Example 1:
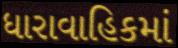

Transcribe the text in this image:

ધારાવાહિકમાં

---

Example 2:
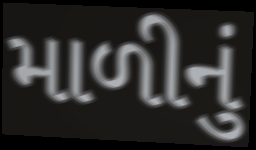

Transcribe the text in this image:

માળીનું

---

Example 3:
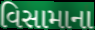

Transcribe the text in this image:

વિસામાના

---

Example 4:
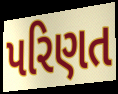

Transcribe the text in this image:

પરિણત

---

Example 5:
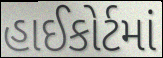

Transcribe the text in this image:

હાઈકોર્ટમાં